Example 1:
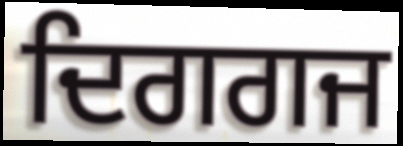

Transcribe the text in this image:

ਦਿਗਗਜ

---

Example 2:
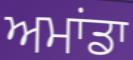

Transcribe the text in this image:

ਅਮਾਂਡਾ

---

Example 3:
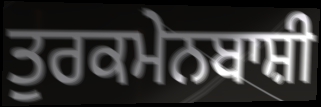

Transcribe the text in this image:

ਤੁਰਕਮੇਨਬਾਸ਼ੀ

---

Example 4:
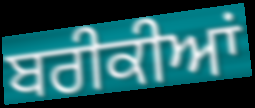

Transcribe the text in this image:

ਬਰੀਕੀਆਂ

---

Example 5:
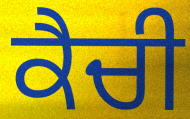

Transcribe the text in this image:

ਕੈਚੀ